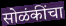
सोळंकींचा